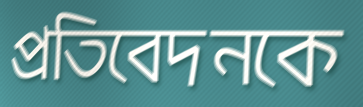
প্রতিবেদনকে